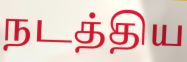
நடத்திய